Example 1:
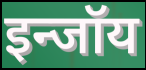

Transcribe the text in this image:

इन्जॉय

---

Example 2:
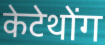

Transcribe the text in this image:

केटेथोंग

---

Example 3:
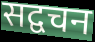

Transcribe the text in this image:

सद्वचन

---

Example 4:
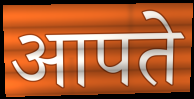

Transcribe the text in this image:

आपते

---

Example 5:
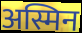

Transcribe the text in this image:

अस्मिन